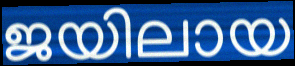
ജയിലായ